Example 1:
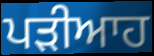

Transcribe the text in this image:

ਪੜੀਆਹ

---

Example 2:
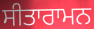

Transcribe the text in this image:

ਸੀਤਾਰਾਮਨ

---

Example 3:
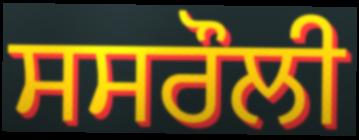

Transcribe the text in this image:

ਸਸਰੌਲੀ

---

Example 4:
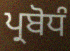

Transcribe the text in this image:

ਪ੍ਰਬੋਧੰ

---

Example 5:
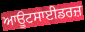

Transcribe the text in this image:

ਆਊਟਸਾਈਡਰਜ਼